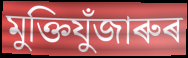
মুক্তিযুঁজাৰুৰ